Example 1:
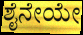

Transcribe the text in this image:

ಶೈನೇಯೇ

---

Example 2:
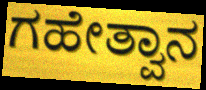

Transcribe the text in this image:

ಗಹೇತ್ವಾನ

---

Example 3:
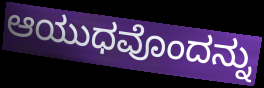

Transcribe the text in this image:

ಆಯುಧವೊಂದನ್ನು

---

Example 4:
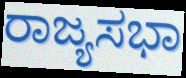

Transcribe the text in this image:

ರಾಜ್ಯಸಭಾ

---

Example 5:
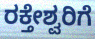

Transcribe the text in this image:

ರಕ್ತೇಶ್ವರಿಗೆ